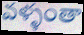
వళ్ళంతా